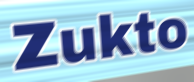
Zukto